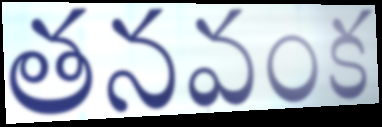
తనవంక